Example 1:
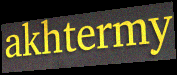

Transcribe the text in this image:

akhtermy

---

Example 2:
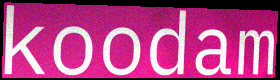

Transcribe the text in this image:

koodam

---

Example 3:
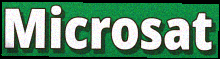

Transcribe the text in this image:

Microsat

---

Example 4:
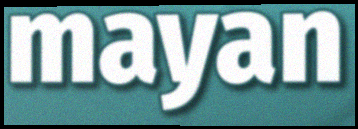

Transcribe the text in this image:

mayan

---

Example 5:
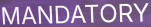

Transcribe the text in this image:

MANDATORY